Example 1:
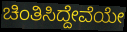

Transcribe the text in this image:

ಚಿಂತಿಸಿದ್ದೇವೆಯೇ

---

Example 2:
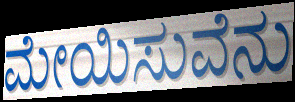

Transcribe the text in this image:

ಮೇಯಿಸುವೆನು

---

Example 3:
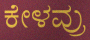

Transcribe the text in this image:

ಕೇಳವ್ರು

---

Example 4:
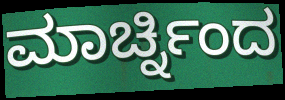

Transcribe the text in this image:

ಮಾರ್ಚ್ನಿಂದ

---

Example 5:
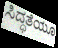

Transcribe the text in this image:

ಸಿದ್ಧತೆಯೂ